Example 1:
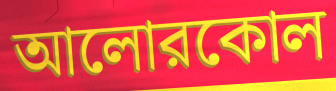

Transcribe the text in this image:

আলোরকোল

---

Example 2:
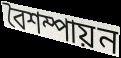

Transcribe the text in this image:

বৈশম্পায়ন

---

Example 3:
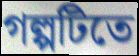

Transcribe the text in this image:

গল্পটিতে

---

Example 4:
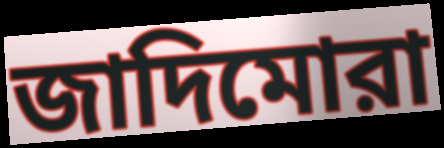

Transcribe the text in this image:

জাদিমোরা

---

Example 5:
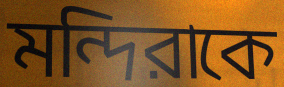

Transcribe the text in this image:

মন্দিরাকে